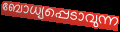
ബോധ്യപ്പെടാവുന്ന